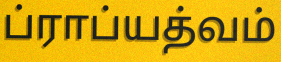
ப்ராப்யத்வம்